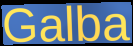
Galba